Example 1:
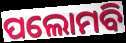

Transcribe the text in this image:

ପଲୋମବି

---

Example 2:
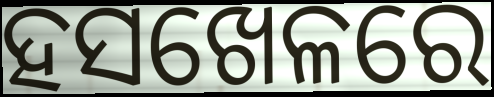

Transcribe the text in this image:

ହସଖେଳରେ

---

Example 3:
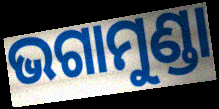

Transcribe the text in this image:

ଭଗାମୁଣ୍ଡା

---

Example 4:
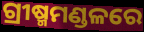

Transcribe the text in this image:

ଗ୍ରୀଷ୍ମମଣ୍ଡଳରେ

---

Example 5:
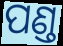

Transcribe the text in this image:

ପଣ୍ଡ